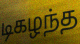
டிகழந்த